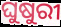
ଘୁଷୁରୀ